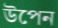
উপেন